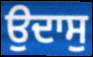
ਉਦਾਸੁ